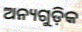
ଅନ୍ୟଗୁଡ଼ିକ